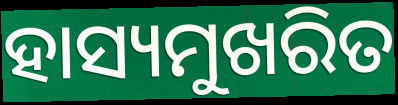
ହାସ୍ୟମୁଖରିତ